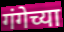
गंगेच्या